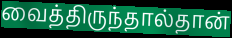
வைத்திருந்தால்தான்